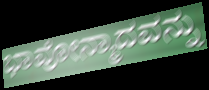
ಭಾವೋನ್ಮಾದವನ್ನು